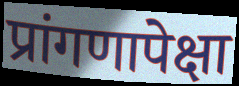
प्रांगणापेक्षा